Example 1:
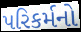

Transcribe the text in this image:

પરિકર્મનો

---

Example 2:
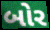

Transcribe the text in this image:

બોર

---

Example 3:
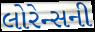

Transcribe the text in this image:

લોરેન્સની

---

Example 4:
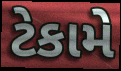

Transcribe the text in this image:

ટેકામે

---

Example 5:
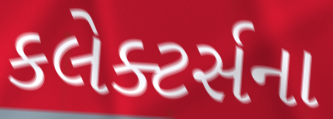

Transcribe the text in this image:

કલેક્ટર્સના